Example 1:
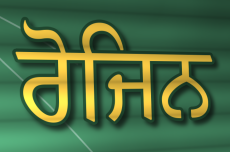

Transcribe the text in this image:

ਰੋਜਿਨ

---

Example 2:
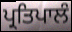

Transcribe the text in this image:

ਪ੍ਰਤਿਪਾਲੰ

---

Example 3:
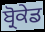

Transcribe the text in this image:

ਬ੍ਰੋਕੇਡ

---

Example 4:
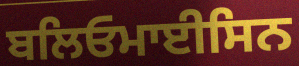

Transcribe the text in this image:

ਬਲਿਓਮਾਈਸਿਨ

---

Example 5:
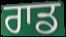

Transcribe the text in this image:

ਰਾਡ